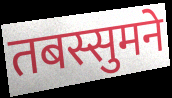
तबस्सुमने